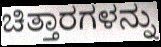
ಚಿತ್ತಾರಗಳನ್ನು